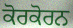
ਕੋਰਕੋਰਨ